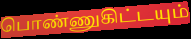
பொண்ணுகிட்டயும்